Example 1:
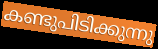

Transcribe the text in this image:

കണ്ടുപിടിക്കുന്നു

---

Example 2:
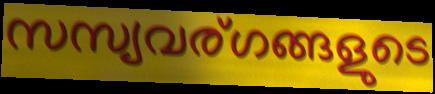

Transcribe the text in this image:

സസ്യവര്ഗങ്ങളുടെ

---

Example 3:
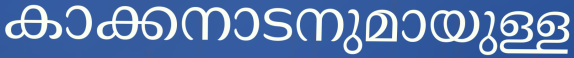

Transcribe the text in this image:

കാക്കനാടനുമായുള്ള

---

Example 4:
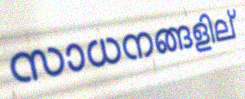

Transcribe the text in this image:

സാധനങ്ങളില്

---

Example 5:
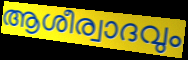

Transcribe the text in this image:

ആശീര്വാദവും